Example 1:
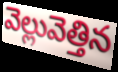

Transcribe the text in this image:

వెల్లువెత్తిన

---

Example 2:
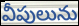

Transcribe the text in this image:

వీపులును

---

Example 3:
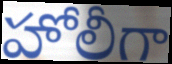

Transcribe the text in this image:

హోలీగా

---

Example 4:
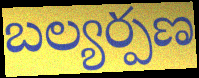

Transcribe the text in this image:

బల్యర్పణ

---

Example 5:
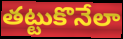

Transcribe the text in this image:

తట్టుకొనేలా